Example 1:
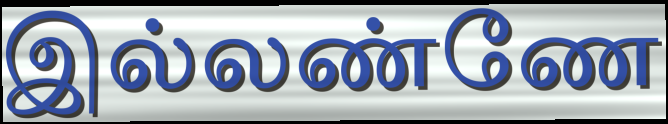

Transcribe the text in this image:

இல்லண்ணே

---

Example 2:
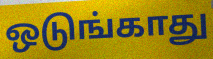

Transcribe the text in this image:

ஒடுங்காது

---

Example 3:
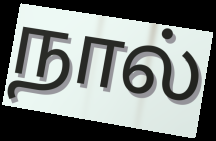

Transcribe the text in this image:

நால்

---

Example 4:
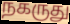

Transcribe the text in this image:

நகருது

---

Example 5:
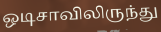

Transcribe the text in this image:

ஒடிசாவிலிருந்து